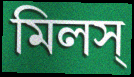
মিলস্